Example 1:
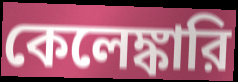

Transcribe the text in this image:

কেলেঙ্কারি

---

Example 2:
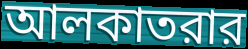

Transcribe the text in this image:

আলকাতরার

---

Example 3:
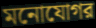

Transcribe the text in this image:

মনোযোগর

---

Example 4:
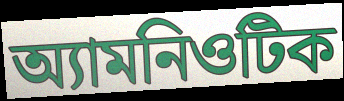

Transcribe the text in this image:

অ্যামনিওটিক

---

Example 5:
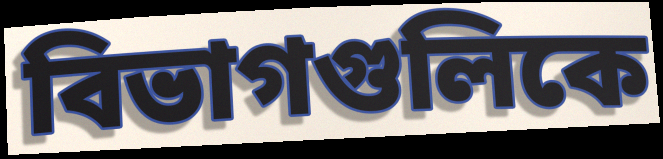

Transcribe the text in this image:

বিভাগগুলিকে